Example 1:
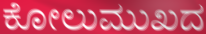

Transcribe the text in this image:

ಕೋಲುಮುಖದ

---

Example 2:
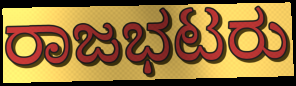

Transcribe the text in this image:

ರಾಜಭಟರು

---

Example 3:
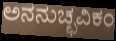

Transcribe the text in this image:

ಅನನುಚ್ಛವಿಕಂ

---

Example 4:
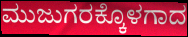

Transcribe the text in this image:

ಮುಜುಗರಕ್ಕೊಳಗಾದ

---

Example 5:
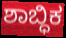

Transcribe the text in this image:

ಶಾಬ್ಧಿಕ